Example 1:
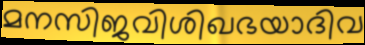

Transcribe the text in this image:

മനസിജവിശിഖഭയാദിവ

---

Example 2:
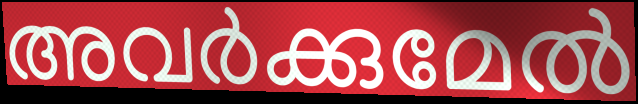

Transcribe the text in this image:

അവർക്കുമേൽ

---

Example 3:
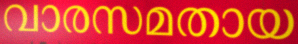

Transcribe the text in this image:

വാരസമതായ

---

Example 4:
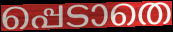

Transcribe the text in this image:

പ്പെടാതെ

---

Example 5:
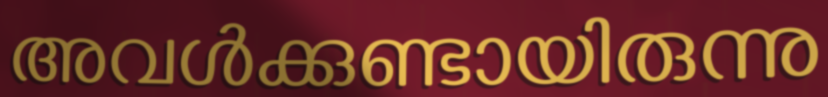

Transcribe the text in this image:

അവൾക്കുണ്ടായിരുന്നു